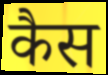
कैस